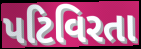
પટિવિરતા